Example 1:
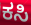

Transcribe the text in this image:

ಕಸಿ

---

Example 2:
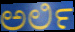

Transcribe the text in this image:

ಅರ್ಲಿ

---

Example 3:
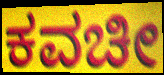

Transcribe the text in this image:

ಕವಚೀ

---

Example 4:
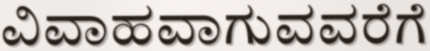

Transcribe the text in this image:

ವಿವಾಹವಾಗುವವರೆಗೆ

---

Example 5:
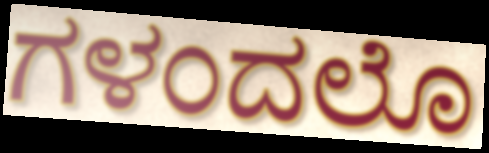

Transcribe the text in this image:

ಗಳಂದಲೊ